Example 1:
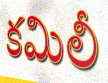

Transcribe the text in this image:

కమిలీ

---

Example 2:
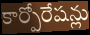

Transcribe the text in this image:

కార్పోరేషన్లు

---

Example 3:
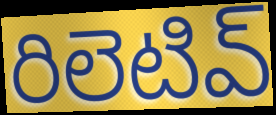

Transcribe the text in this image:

రిలెటివ్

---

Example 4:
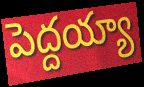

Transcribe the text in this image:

పెద్దయ్యా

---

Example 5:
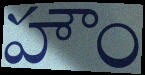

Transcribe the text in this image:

హౌం